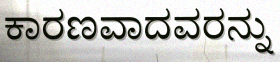
ಕಾರಣವಾದವರನ್ನು